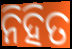
ନିହିତ